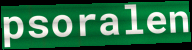
psoralen